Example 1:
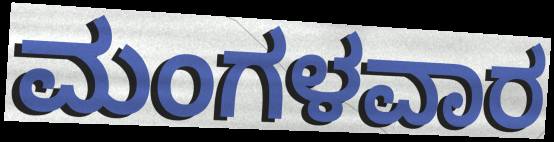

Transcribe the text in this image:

ಮಂಗಳವಾರ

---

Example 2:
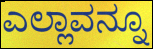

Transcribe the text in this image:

ಎಲ್ಲಾವನ್ನೂ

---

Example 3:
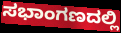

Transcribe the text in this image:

ಸಭಾಂಗಣದಲ್ಲಿ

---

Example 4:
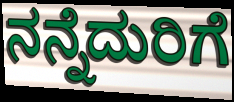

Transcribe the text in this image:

ನನ್ನೆದುರಿಗೆ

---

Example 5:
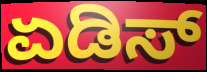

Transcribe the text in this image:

ಏಡಿಸ್